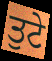
ਤੁਟੇ